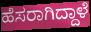
ಹೆಸರಾಗಿದ್ದಾಳೆ